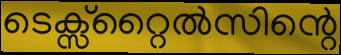
ടെക്സ്റ്റൈൽസിന്റെ